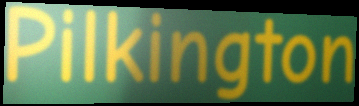
Pilkington